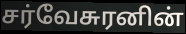
சர்வேசுரனின்